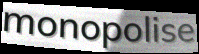
monopolise